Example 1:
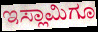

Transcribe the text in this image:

ಇಸ್ಲಾಮಿಗೂ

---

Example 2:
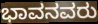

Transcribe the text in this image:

ಭಾವನವರು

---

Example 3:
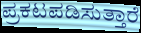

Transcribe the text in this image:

ಪ್ರಕಟಪಡಿಸುತ್ತಾರೆ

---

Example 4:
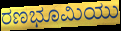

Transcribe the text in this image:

ರಣಭೂಮಿಯು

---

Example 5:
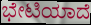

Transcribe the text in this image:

ಭೇಟಿಯಾದೆ